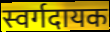
स्वर्गदायक